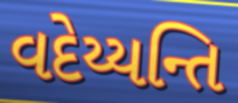
વદેય્યન્તિ